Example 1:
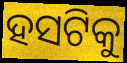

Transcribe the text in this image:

ହସଟିକୁ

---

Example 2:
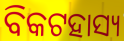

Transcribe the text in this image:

ବିକଟହାସ୍ୟ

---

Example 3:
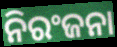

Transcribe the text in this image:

ନିରଂଜନା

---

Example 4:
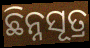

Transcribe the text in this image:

ଛିନ୍ନସୂତ୍ର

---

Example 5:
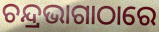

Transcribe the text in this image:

ଚନ୍ଦ୍ରଭାଗାଠାରେ